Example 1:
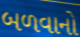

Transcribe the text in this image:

બળવાનો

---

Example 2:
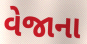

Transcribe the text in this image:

વેજાના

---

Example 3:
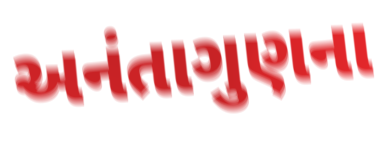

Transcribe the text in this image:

અનંતાગુણના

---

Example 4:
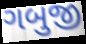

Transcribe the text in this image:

ગબુજી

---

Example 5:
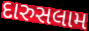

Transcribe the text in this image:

દારુસલામ